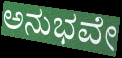
ಅನುಭವೇ